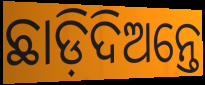
ଛାଡ଼ିଦିଅନ୍ତେ